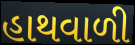
હાથવાળી